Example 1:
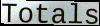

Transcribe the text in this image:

Totals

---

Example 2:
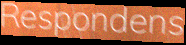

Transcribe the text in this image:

Respondens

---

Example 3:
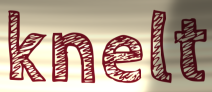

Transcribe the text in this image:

knelt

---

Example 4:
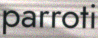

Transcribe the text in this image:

parroti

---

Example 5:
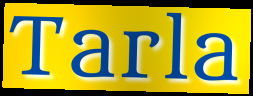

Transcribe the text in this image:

Tarla